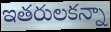
ఇతరులకన్నా